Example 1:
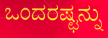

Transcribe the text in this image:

ಒಂದರಷ್ಟನ್ನು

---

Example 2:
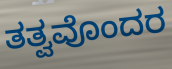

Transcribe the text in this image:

ತತ್ವವೊಂದರ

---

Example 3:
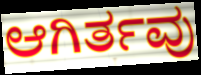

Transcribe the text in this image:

ಆಗಿರ್ತವು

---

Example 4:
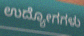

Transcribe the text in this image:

ಉದ್ಯೋಗಗಳು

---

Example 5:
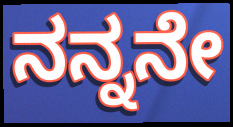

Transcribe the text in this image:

ನನ್ನನೇ